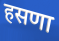
हसणा